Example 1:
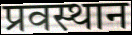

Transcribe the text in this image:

प्रवस्थान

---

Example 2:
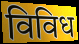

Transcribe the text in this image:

विविध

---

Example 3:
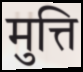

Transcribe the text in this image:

मुत्ति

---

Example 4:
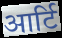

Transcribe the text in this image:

आर्टि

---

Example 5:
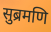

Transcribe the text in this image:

सुब्रमणि